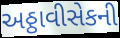
અઠ્ઠાવીસેકની